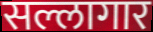
सल्लागार